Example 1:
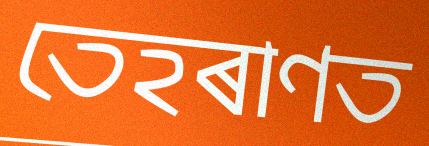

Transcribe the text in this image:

তেহৰাণত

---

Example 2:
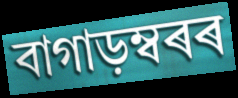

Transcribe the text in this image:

বাগাড়ম্বৰৰ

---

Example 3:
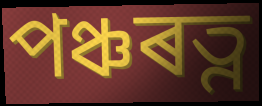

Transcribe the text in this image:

পঞ্চৰত্ন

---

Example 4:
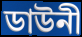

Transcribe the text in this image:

ডাউনী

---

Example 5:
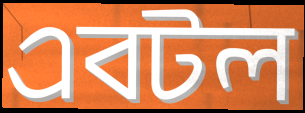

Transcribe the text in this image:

এবটল